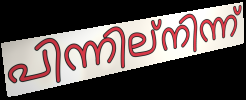
പിന്നില്നിന്ന്